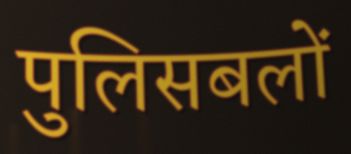
पुलिसबलों